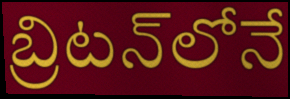
బ్రిటన్‌లోనే